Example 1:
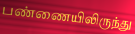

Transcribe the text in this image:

பண்ணையிலிருந்து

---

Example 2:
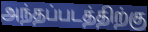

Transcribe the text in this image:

அந்தப்படத்திற்கு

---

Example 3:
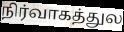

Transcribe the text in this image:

நிர்வாகத்துல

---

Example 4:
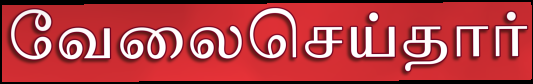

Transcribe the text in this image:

வேலைசெய்தார்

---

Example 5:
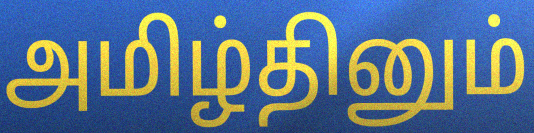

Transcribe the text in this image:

அமிழ்தினும்